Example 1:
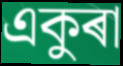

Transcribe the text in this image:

একুৰা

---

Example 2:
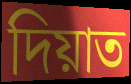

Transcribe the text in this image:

দিয়াত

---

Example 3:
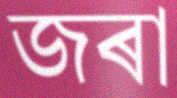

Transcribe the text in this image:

জৰা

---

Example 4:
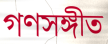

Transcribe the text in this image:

গণসঙ্গীত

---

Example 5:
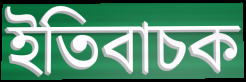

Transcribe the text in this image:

ইতিবাচক